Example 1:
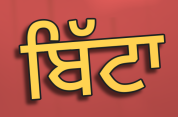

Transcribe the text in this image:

ਬਿੱਟਾ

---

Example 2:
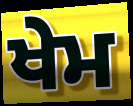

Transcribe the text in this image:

ਖੇਮ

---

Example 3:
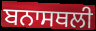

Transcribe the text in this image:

ਬਨਾਸਥਲੀ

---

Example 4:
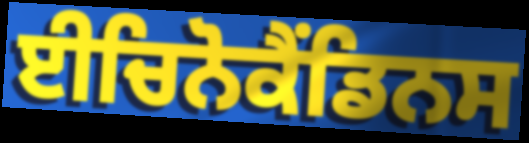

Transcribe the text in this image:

ਈਚਿਨੋਕੈਂਡਿਨਸ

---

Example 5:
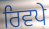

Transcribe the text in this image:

ਰਿਵਪੇ